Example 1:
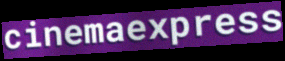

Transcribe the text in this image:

cinemaexpress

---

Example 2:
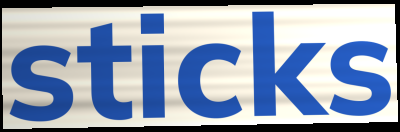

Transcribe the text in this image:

sticks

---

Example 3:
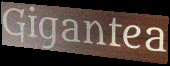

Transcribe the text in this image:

Gigantea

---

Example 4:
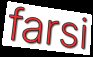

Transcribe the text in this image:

farsi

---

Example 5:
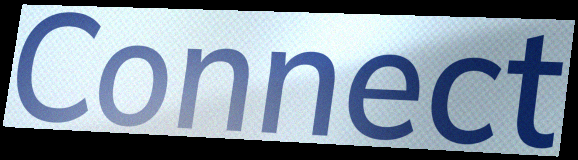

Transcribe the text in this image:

Connect